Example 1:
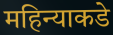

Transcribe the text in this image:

महिन्याकडे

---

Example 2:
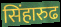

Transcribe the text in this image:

सिंहारुढ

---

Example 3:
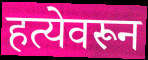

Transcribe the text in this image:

हत्येवरून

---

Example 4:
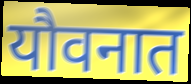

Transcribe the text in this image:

यौवनात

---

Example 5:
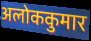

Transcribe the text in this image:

अलोककुमार